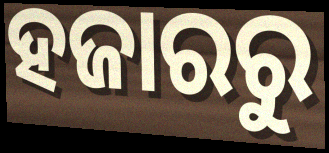
ହଜାରରୁ